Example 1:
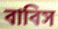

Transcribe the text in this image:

বাবিস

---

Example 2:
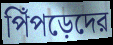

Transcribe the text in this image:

পিঁপড়েদের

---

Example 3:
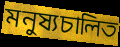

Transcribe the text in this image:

মনুষ্যচালিত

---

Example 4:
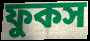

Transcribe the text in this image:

ফুকস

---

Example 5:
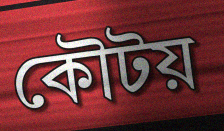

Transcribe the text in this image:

কৌটয়